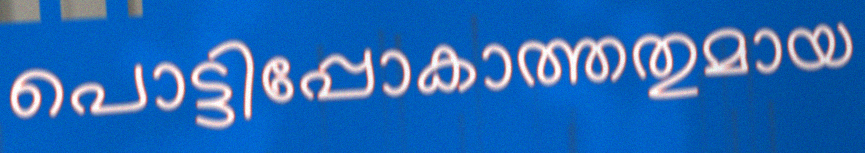
പൊട്ടിപ്പോകാത്തതുമായ